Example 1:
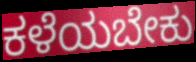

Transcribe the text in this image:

ಕಳೆಯಬೇಕು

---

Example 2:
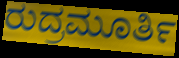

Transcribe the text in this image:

ರುದ್ರಮೂರ್ತಿ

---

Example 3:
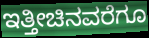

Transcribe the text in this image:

ಇತ್ತೀಚಿನವರೆಗೂ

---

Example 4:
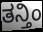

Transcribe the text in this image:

ತನ್ತಿಂ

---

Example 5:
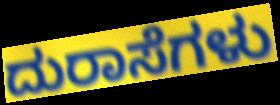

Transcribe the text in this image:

ದುರಾಸೆಗಳು